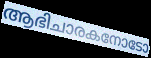
ആഭിചാരകനോടോ